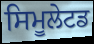
ਸਿਮੂਲੇਟਡ